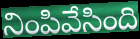
నింపివేసింది